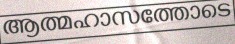
ആത്മഹാസത്തോടെ